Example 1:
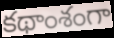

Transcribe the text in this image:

కథాంశంగా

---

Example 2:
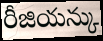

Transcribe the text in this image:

రీజియన్కు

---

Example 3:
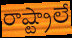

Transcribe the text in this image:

రాష్ట్రాలే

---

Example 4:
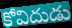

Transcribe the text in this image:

కోవిదుడు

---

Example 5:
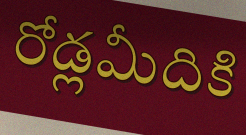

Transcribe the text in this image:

రోడ్లమీదికి